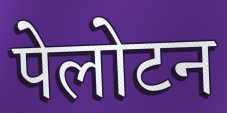
पेलोटन